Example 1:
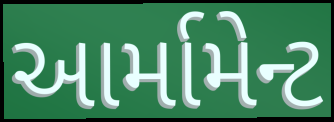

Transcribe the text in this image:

આર્મામેન્ટ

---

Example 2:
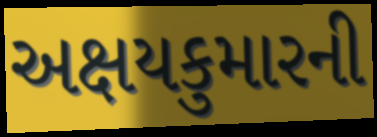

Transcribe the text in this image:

અક્ષયકુમારની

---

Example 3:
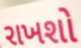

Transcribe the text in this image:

રાખશો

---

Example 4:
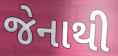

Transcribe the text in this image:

જેનાથી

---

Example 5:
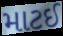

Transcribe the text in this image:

માટઈ